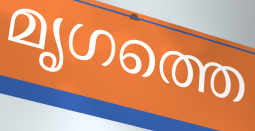
മൃഗത്തെ